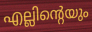
എല്ലിന്റെയും